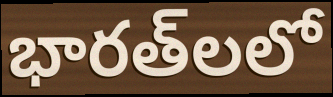
భారత్‌లలో